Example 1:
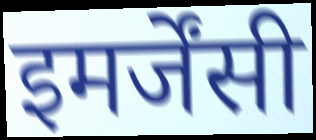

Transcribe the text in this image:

इमर्जेंसी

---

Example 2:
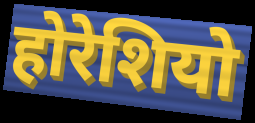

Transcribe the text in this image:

होरेशियो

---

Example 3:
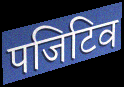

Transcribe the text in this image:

पजिटिव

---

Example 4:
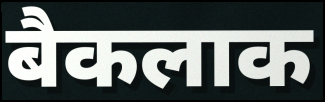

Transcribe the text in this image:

बैकलाक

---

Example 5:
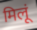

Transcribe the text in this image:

मिलूं